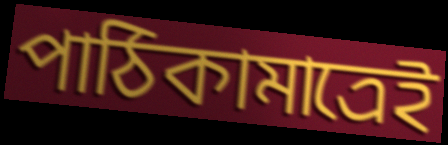
পাঠিকামাত্রেই